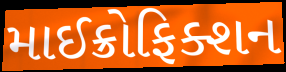
માઈક્રોફિક્શન